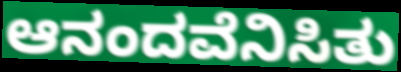
ಆನಂದವೆನಿಸಿತು